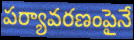
పర్యావరణంపైనే